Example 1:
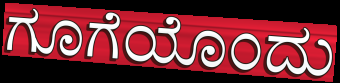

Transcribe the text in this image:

ಗೂಗೆಯೊಂದು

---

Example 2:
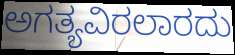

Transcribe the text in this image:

ಅಗತ್ಯವಿರಲಾರದು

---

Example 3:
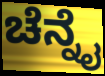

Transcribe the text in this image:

ಚೆನ್ನೈ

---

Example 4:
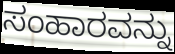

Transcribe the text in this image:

ಸಂಹಾರವನ್ನು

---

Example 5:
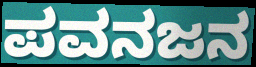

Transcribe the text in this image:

ಪವನಜನ